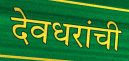
देवधरांची